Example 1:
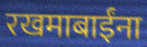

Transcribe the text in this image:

रखमाबाईंना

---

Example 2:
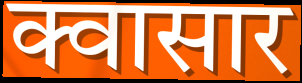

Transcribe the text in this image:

क्वासार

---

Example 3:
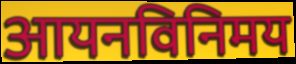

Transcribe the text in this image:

आयनविनिमय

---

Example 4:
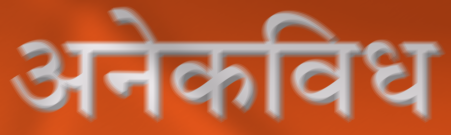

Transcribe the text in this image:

अनेकविध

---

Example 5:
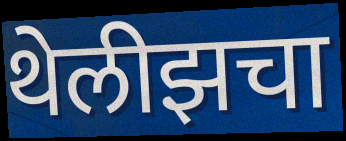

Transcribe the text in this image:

थेलीझचा